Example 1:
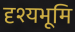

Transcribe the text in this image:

दृश्यभूमि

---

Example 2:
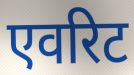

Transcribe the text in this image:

एवरिट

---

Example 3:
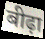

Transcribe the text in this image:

बीढ़ा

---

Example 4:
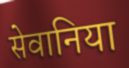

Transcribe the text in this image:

सेवानिया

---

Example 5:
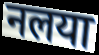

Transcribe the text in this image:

नलया